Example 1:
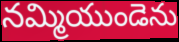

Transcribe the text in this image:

నమ్మియుండెను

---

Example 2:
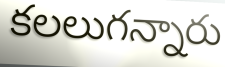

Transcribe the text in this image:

కలలుగన్నారు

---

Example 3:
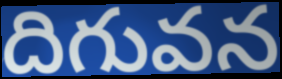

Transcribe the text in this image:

దిగువన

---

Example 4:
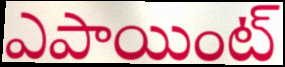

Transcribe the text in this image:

ఎపాయింట్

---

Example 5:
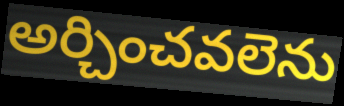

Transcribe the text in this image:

అర్చించవలెను